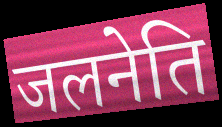
जलनेति